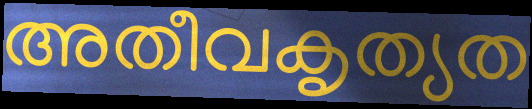
അതീവകൃത്യത